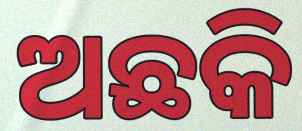
ଅଛକି